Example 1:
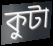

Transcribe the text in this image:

কুটা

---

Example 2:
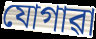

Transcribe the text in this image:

যোগাৱা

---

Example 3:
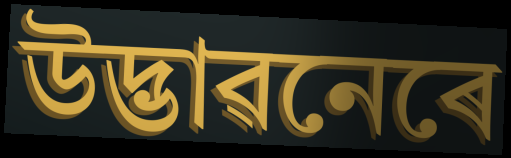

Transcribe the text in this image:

উদ্ভাৱনেৰে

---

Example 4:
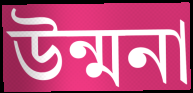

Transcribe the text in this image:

উন্মনা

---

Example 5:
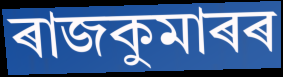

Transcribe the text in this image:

ৰাজকুমাৰৰ